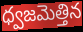
ధ్వజమెత్తిన